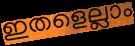
ഇതളെല്ലാം